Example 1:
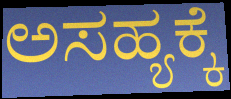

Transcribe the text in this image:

ಅಸಹ್ಯಕ್ಕೆ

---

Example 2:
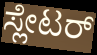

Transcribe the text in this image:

ಸ್ಲೇಟರ್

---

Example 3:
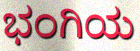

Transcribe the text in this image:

ಭಂಗಿಯ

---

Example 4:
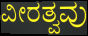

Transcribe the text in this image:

ವೀರತ್ವವು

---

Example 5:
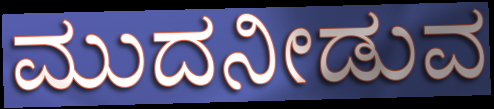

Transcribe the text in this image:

ಮುದನೀಡುವ